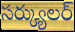
సర్క్యులర్